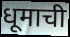
धूमाची